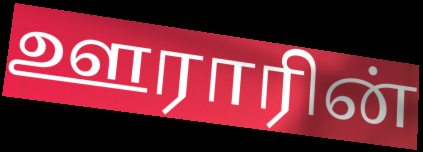
ஊராரின்